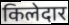
किलेदार